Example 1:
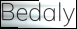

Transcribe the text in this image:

Bedaly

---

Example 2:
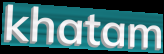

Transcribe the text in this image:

khatam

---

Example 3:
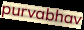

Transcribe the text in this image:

purvabhav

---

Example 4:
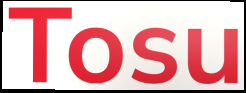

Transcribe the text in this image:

Tosu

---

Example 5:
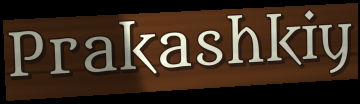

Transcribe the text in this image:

Prakashkiy